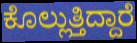
ಕೊಲ್ಲುತ್ತಿದ್ದಾರೆ